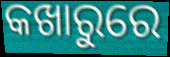
କଖାରୁରେ